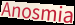
Anosmia